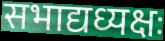
सभाद्यध्यक्षः